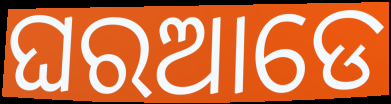
ଘରଆଡେ